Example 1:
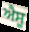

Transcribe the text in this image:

ਐਸੂ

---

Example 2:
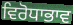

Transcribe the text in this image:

ਵਿਰੋਧਾਭਾਵ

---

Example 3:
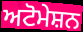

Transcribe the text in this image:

ਅਟੋਮੇਸ਼ਨ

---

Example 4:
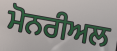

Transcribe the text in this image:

ਮੋਨਰੀਅਲ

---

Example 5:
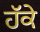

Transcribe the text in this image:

ਹੱਕੇ